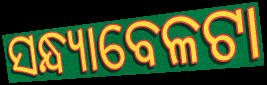
ସନ୍ଧ୍ୟାବେଳଟା